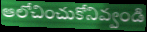
ఆలోచించుకోనివ్వండి